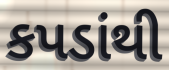
કપડાંથી